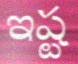
ఇష్ట